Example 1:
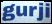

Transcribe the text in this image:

gurji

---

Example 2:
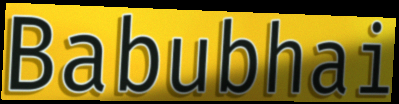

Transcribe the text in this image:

Babubhai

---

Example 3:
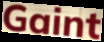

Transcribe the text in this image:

Gaint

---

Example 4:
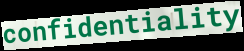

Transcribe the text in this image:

confidentiality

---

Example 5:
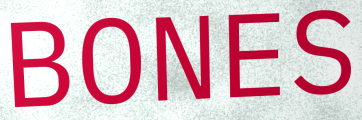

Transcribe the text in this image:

BONES